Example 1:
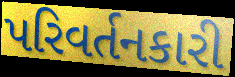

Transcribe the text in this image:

પરિવર્તનકારી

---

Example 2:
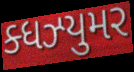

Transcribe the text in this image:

ક્ધઝ્યુમર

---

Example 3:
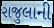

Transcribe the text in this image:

રાજુલાની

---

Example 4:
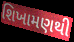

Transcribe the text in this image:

શિખામણથી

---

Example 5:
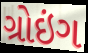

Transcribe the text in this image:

ગ્રોઇંગ